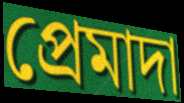
প্ৰেমাদা